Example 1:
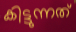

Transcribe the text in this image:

കിട്ടുന്നത്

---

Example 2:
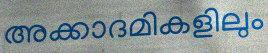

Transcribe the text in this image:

അക്കാദമികളിലും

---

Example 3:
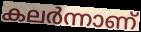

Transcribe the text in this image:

കലർന്നാണ്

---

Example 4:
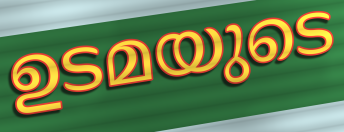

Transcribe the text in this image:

ഉടമയുടെ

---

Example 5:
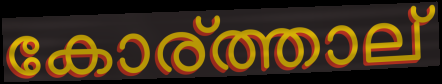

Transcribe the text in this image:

കോര്ത്താല്